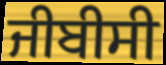
ਜੀਬੀਸੀ